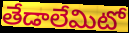
తేడాలేమిటో